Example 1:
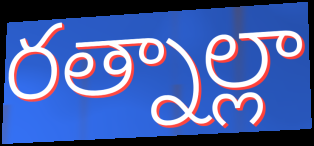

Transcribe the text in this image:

రత్నాల్లా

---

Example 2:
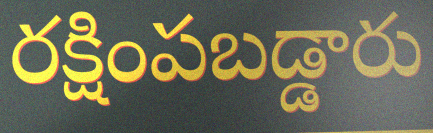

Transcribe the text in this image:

రక్షింపబడ్డారు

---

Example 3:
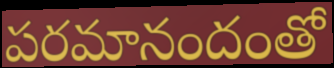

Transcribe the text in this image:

పరమానందంతో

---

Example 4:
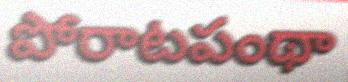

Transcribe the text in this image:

పోరాటపంథా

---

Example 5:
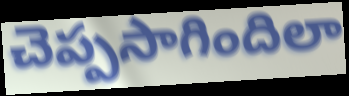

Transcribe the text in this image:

చెప్పసాగిందిలా